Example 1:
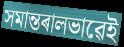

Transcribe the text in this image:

সমান্তৰালভাৱেই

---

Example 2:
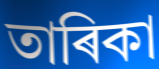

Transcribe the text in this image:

তাৰিকা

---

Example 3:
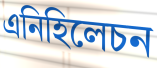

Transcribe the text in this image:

এনিহিলেচন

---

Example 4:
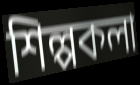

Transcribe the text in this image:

শিল্পকলা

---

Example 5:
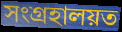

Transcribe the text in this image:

সংগ্ৰহালয়ত